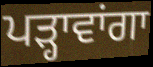
ਪੜ੍ਹਾਵਾਂਗਾ